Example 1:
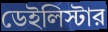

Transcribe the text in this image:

ডেইলিস্টার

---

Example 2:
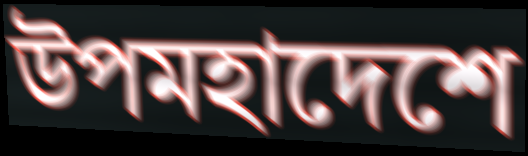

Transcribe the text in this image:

উপমহাদেশে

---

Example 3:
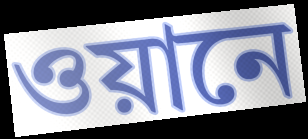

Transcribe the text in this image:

ওয়ানে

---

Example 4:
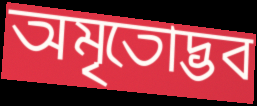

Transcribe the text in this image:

অমৃতোদ্ভব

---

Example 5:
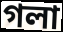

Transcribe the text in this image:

গলা